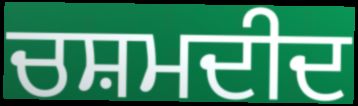
ਚਸ਼ਮਦੀਦ